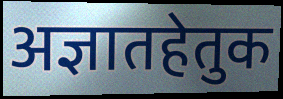
अज्ञातहेतुक